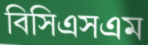
বিসিএসএম